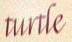
turtle